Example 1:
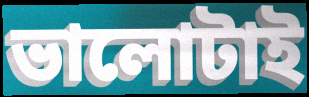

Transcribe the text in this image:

ভালোটাই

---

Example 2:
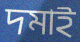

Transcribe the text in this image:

দমাই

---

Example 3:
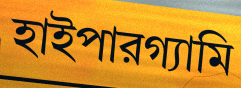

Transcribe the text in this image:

হাইপারগ্যামি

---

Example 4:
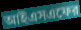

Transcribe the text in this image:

আইএসএফের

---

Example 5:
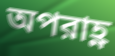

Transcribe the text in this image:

অপরাহ্ণ